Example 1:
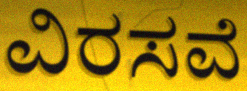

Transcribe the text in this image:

ವಿರಸವೆ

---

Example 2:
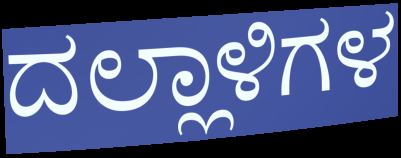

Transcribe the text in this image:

ದಲ್ಲಾಳಿಗಳ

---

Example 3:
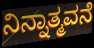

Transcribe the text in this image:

ನಿನ್ನಾತ್ಮವನೆ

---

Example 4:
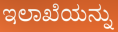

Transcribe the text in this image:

ಇಲಾಖೆಯನ್ನು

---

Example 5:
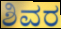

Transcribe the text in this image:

ಶಿವರ